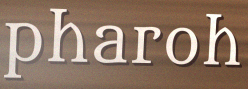
pharoh